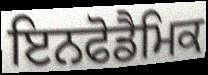
ਇਨਫੋਡੈਮਿਕ